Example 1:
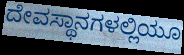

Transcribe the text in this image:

ದೇವಸ್ಥಾನಗಳಲ್ಲಿಯೂ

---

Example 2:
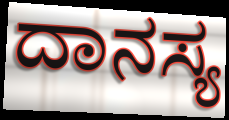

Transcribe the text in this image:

ದಾನಸ್ಯ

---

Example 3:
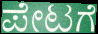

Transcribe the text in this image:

ಪೇಟಗೆ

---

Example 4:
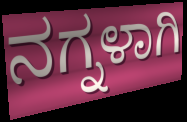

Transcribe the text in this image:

ನಗ್ನಳಾಗಿ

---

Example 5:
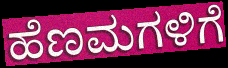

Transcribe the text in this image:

ಹೆಣಮಗಳಿಗೆ